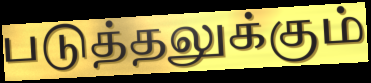
படுத்தலுக்கும்